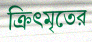
ক্রিৎমৃতের